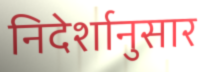
निदेर्शानुसार